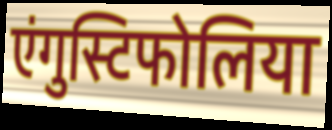
एंगुस्टिफोलिया